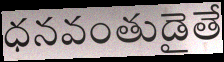
ధనవంతుడైతే